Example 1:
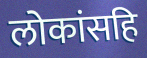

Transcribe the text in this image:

लोकांसहि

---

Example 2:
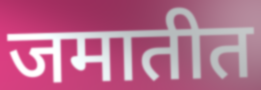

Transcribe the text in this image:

जमातीत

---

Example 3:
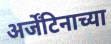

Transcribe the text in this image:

अर्जेंटिनाच्या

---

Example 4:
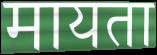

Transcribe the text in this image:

मायता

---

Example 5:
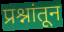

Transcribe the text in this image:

प्रश्नांतून